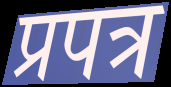
प्रपत्र